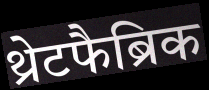
थ्रेटफैब्रिक